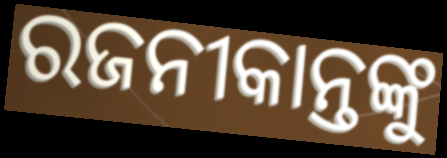
ରଜନୀକାନ୍ତଙ୍କୁ